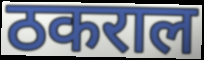
ठकराल